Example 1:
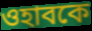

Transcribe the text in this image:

ওহাবকে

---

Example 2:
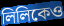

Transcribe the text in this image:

লিলিকেও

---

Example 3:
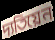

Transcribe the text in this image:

দ্যতিয়েন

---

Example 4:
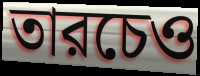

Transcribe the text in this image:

তারচেও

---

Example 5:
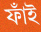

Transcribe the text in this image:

ফাঁই